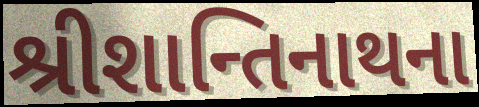
શ્રીશાન્તિનાથના